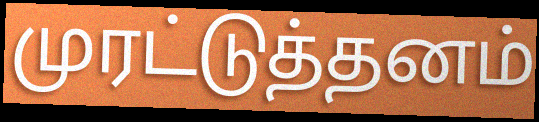
முரட்டுத்தனம்